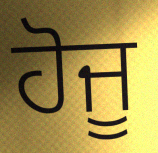
ਹੋਜੂ